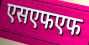
एसएफएफ